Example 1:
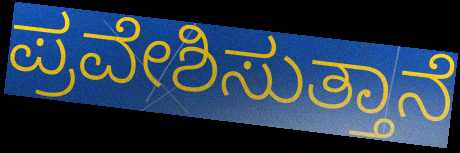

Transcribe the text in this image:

ಪ್ರವೇಶಿಸುತ್ತಾನೆ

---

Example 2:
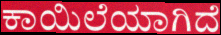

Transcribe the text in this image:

ಕಾಯಿಲೆಯಾಗಿದೆ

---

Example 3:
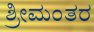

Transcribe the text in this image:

ಶ್ರೀಮಂತರ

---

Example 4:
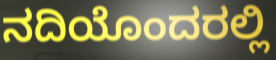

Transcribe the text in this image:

ನದಿಯೊಂದರಲ್ಲಿ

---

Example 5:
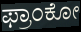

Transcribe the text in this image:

ಫ್ರಾಂಕೋ